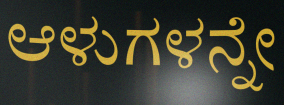
ಆಳುಗಳನ್ನೇ